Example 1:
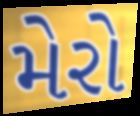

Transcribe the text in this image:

મેરો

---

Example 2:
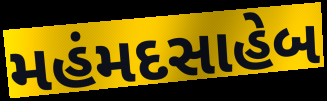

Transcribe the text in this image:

મહંમદસાહેબ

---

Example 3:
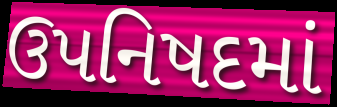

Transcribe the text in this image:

ઉપનિષદમાં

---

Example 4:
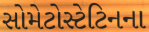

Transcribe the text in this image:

સોમેટોસ્ટેટિનના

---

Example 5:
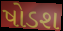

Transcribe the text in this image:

ષોડશ